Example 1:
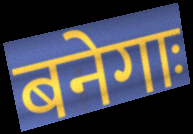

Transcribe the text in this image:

बनेगाः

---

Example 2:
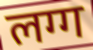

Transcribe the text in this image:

लग्ग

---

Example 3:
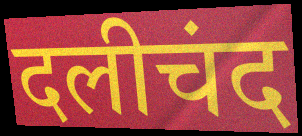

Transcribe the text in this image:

दलीचंद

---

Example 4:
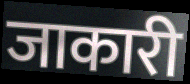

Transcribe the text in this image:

जाकारी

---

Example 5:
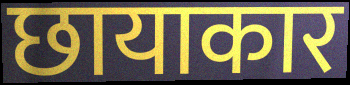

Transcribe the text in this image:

छायाकार